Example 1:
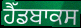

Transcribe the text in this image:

ਹੈੱਡਬਾਕਸ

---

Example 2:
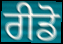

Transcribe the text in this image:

ਰੀਡੋ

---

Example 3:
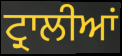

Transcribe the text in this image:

ਟ੍ਰਾਲੀਆਂ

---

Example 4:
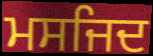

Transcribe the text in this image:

ਮਸਜਿਦ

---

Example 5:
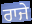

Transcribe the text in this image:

ਰਾਜੇ